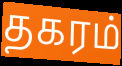
தகரம்